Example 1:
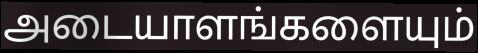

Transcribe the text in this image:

அடையாளங்களையும்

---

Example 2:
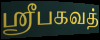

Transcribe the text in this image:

ஸ்ரீபகவத்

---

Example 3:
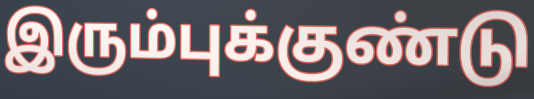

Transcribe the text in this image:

இரும்புக்குண்டு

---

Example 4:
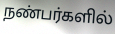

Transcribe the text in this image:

நண்பர்களில்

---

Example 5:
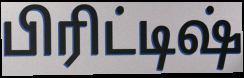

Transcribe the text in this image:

பிரிட்டிஷ்